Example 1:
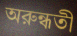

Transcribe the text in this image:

অরুন্ধতী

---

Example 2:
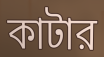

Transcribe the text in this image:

কাটার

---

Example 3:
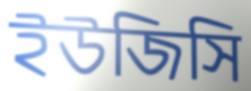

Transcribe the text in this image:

ইউজিসি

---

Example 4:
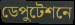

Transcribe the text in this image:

ডেপুটেশনে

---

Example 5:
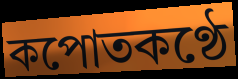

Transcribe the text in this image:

কপোতকণ্ঠে